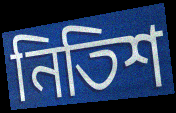
নিতিশ